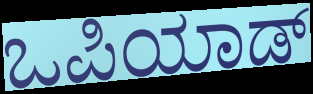
ಒಪಿಯಾಡ್